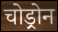
चोड्रोन